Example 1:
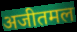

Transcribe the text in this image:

अजीतमल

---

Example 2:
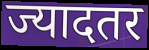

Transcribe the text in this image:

ज्यादतर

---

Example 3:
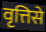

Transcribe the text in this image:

वृत्तिसे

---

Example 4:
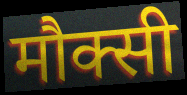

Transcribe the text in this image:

मौक्सी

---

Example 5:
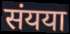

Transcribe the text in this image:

संयया